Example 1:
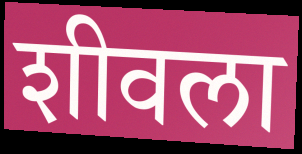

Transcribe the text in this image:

शीवला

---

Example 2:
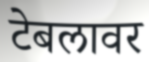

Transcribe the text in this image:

टेबलावर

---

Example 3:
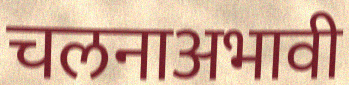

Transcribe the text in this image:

चलनाअभावी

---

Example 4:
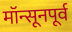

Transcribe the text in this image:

मॉन्सूनपूर्व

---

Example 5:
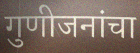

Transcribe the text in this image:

गुणीजनांचा